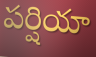
పర్షియా